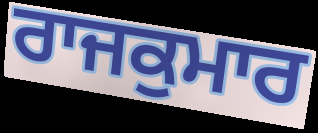
ਰਾਜਕੁਮਾਰ